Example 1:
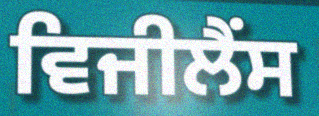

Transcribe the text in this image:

ਵਿਜੀਲੈਂਸ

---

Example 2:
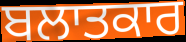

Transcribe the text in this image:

ਬਲਾਤਕਾਰ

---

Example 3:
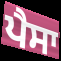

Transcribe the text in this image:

ਪੈਸਾ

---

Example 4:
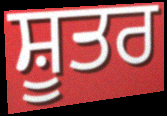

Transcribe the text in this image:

ਸ਼ੂਤਰ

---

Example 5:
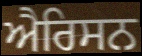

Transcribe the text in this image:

ਐਰਿਸਨ